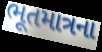
ભૂતમાત્રના